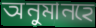
অনুমানহে